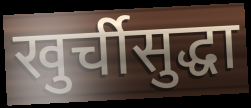
खुर्चीसुद्धा